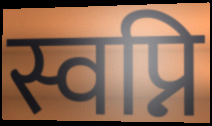
स्वप्नि